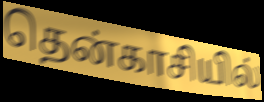
தென்காசியில்